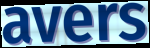
avers